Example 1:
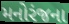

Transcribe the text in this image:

મનોરંજના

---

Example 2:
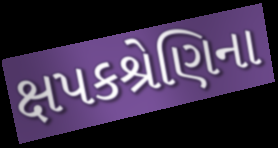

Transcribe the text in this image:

ક્ષપકશ્રેણિના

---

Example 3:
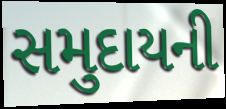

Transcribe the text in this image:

સમુદાયની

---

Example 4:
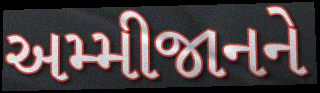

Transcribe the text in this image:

અમ્મીજાનને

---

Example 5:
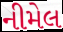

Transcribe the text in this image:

નીમેલ